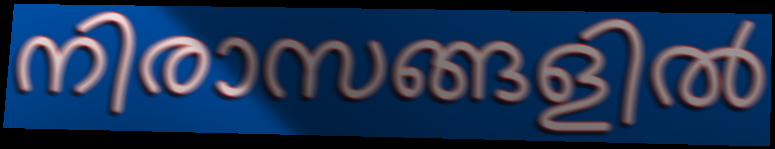
നിരാസങ്ങളിൽ